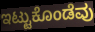
ಇಟ್ಟುಕೊಂಡೆವು